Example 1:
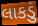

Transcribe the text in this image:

લાકડું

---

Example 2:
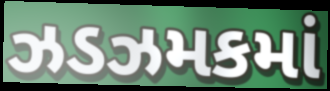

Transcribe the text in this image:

ઝડઝમકમાં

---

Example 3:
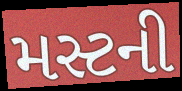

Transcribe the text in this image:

મસ્ટની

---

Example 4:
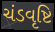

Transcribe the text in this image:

ચંડવૃષ્ટિ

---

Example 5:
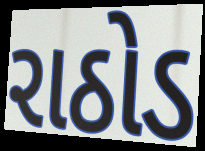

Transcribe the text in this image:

રાઠોડ